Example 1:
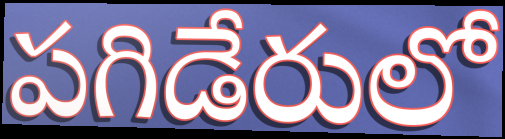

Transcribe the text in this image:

పగిడేరులో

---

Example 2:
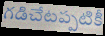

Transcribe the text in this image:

గడిచేటప్పటికీ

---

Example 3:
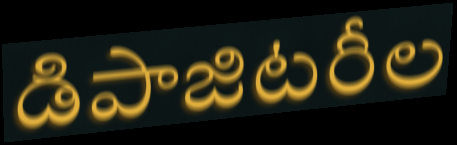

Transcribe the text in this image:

డిపాజిటరీల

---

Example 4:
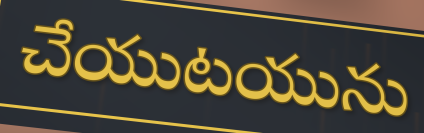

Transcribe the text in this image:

చేయుటయును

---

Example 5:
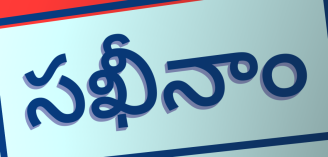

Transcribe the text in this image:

సఖీనాం